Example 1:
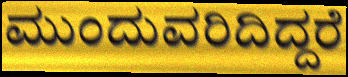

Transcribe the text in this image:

ಮುಂದುವರಿದಿದ್ದರೆ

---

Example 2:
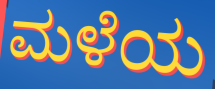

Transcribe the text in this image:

ಮಳೆಯ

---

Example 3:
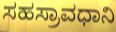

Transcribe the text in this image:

ಸಹಸ್ರಾವಧಾನಿ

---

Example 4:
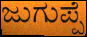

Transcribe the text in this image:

ಜುಗುಪ್ಪೆ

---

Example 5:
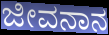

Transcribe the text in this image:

ಜೀವನಾನ